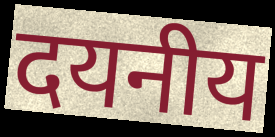
दयनीय